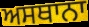
ਅਸਥਾਨਾ